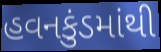
હવનકુંડમાંથી